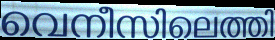
വെനീസിലെത്തി